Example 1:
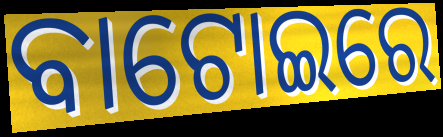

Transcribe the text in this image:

ବାଟୋଇରେ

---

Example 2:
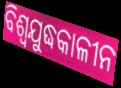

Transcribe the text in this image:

ବିଶ୍ୱଯୁଦ୍ଧକାଳୀନ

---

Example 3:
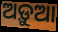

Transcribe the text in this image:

ଅଡ଼ୁଆ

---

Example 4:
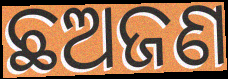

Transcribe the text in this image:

ଛଅଜଣ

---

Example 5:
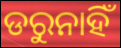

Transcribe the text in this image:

ଡରୁନାହିଁ